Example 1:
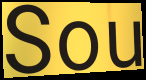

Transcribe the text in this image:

Sou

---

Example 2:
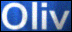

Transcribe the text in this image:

Oliv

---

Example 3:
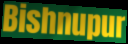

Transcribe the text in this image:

Bishnupur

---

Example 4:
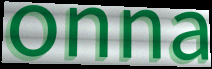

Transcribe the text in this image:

onna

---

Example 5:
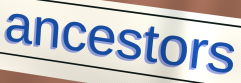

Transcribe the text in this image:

ancestors